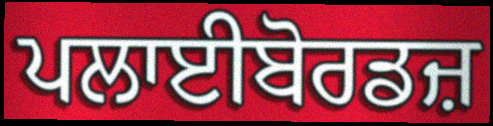
ਪਲਾਈਬੋਰਡਜ਼